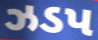
ઝડપ